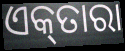
ଏକ୍‌ତାରା